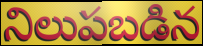
నిలుపబడిన